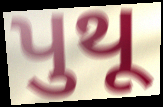
પુથૂ